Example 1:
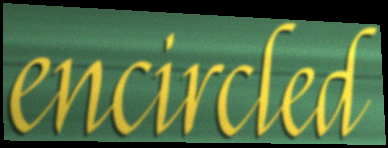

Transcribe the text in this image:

encircled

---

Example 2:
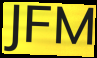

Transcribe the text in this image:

JFM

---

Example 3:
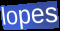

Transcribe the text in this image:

lopes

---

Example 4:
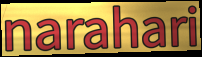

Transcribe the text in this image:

narahari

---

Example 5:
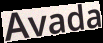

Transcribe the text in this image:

Avada